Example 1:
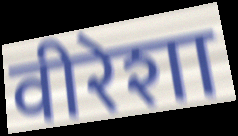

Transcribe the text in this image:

वीरेशा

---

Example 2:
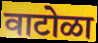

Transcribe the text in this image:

वाटोळा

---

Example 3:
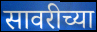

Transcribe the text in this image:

सावरीच्या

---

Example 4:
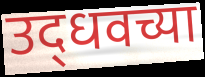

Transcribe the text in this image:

उद्धवच्या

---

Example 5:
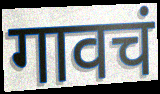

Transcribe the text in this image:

गावचं